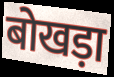
बोखड़ा